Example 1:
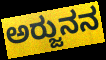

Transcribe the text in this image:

ಅರ್‍ಜುನನ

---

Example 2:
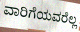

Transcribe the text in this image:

ವಾರಿಗೆಯವರೆಲ್ಲ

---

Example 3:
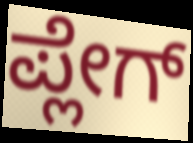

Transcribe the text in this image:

ಪ್ಲೇಗ್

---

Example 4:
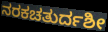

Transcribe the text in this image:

ನರಕಚತುರ್ದಶೀ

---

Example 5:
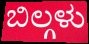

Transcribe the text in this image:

ಬಿಲ್ಗಳು